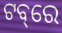
ଟବ୍‌ରେ